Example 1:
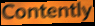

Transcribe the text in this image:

Contently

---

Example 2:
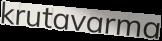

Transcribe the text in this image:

krutavarma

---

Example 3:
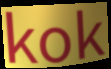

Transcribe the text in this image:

kok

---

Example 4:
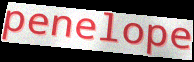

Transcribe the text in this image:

penelope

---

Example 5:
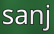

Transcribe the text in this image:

sanj